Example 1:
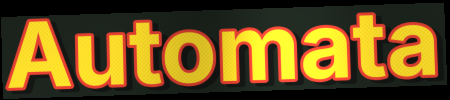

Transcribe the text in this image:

Automata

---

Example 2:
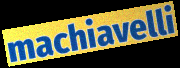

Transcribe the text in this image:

machiavelli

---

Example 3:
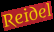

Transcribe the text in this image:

Reidel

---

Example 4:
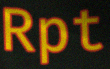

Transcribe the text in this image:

Rpt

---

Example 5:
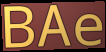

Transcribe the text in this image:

BAe